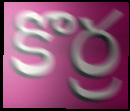
కొర్ర